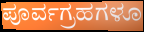
ಪೂರ್ವಗ್ರಹಗಳೂ